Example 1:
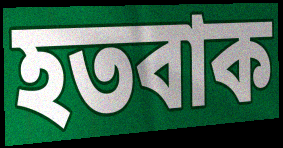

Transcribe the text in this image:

হতবাক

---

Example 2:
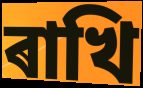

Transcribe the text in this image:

ৰাখি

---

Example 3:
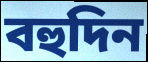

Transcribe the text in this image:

বহুদিন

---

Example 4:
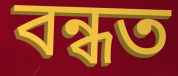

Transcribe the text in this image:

বন্ধত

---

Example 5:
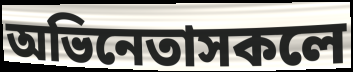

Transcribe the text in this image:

অভিনেতাসকলে